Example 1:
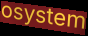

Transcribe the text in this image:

osystem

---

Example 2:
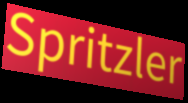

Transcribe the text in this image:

Spritzler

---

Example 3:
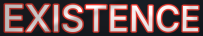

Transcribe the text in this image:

EXISTENCE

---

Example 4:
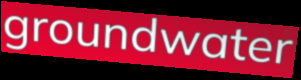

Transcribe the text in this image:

groundwater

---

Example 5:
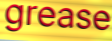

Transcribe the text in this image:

grease